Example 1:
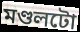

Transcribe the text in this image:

মণ্ডলটো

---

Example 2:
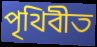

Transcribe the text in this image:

পৃথিবীত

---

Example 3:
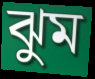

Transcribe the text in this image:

ঝুম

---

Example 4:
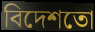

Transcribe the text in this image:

বিদেশতো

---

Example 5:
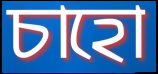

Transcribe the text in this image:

চাহো